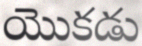
యొకడు